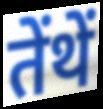
तेंथें